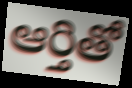
ఆర్తితో